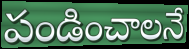
పండించాలనే